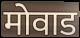
मोवाड